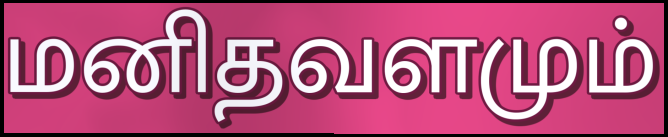
மனிதவளமும்